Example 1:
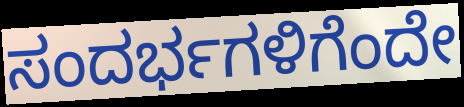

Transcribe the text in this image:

ಸಂದರ್ಭಗಳಿಗೆಂದೇ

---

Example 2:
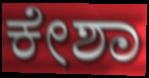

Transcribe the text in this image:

ಕೇಶಾ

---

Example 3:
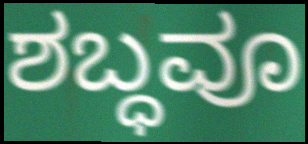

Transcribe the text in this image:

ಶಬ್ಧವೂ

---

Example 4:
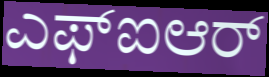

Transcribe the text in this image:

ಎಫ್ಐಆರ್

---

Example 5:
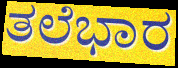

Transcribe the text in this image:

ತಲೆಭಾರ